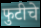
फुटीचे